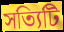
সত্যিটি